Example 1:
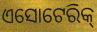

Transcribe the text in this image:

ଏସୋଟେରିକ୍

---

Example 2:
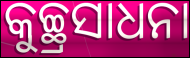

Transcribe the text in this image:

କୁଚ୍ଛ୍ରସାଧନା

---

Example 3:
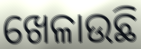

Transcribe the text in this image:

ଖେଳାଉଛି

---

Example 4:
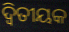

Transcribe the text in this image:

ଦ୍ୱିତୀୟକ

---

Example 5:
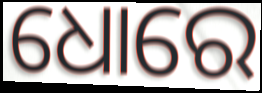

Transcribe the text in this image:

ଧୋରେ